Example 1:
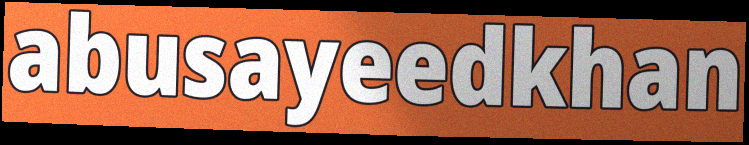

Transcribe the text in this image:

abusayeedkhan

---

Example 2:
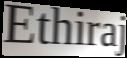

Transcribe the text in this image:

Ethiraj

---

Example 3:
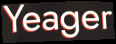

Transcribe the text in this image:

Yeager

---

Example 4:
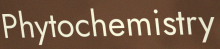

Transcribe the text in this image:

Phytochemistry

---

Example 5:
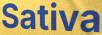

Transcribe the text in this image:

Sativa